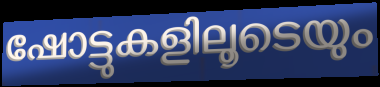
ഷോട്ടുകളിലൂടെയും